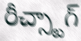
రీచ్స్టాగ్